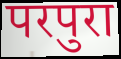
परपुरा